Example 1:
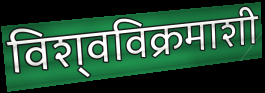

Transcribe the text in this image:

विश्वविक्रमाशी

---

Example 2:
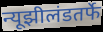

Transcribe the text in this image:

न्यूझीलंडतर्फे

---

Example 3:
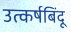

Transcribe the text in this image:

उत्कर्षबिंदू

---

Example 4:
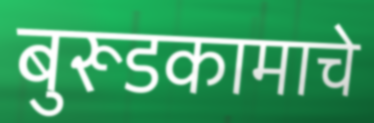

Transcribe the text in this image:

बुरूडकामाचे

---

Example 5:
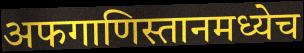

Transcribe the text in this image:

अफगाणिस्तानमध्येच